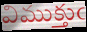
విముక్తుఁ